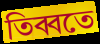
তিব্বতে